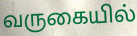
வருகையில்